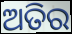
ଅତିର